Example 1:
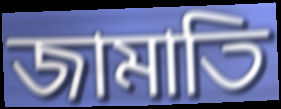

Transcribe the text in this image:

জামাতি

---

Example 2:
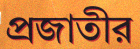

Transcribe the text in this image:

প্রজাতীর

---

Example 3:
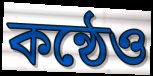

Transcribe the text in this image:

কন্ঠেও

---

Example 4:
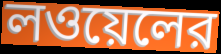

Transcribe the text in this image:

লওয়েলের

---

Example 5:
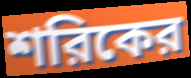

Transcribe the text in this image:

শরিকের